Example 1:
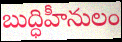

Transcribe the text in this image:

బుద్ధిహీనులం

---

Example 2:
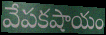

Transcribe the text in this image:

వేపకషాయం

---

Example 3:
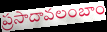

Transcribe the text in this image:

ప్రసాదావలంబాం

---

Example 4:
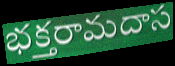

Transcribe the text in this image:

భక్తరామదాస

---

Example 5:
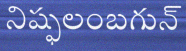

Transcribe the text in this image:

నిష్ఫలంబగున్